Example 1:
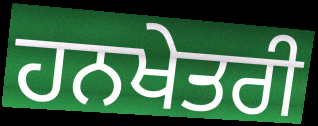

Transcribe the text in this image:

ਹਨਖੇਤਰੀ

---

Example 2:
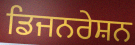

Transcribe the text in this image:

ਡਿਜਨਰੇਸ਼ਨ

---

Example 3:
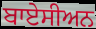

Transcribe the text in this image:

ਬਾਏਸੀਅਨ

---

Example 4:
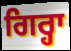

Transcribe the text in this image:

ਗਿਰ੍ਹਾ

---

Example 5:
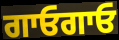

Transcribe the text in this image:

ਗਾਓਗਾਓ